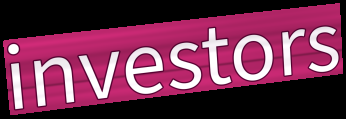
investors